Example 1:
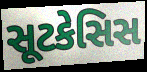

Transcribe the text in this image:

સૂટકેસિસ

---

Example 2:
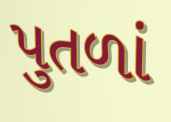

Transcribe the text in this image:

પુતળાં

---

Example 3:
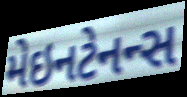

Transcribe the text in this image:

મેઇનટેનન્સ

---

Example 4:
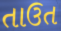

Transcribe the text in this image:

તાઉત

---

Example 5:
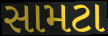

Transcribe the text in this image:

સામટા